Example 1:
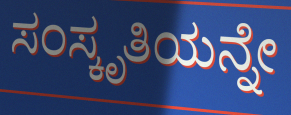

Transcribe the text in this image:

ಸಂಸ್ಕೃತಿಯನ್ನೇ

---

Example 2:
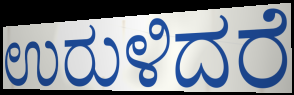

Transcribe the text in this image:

ಉರುಳಿದರೆ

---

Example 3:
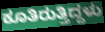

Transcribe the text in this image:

ಕೂತಿರುತ್ತಿದ್ದಳು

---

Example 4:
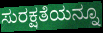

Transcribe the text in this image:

ಸುರಕ್ಷತೆಯನ್ನೂ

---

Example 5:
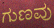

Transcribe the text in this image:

ಗುಣವು